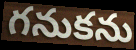
గనుకను